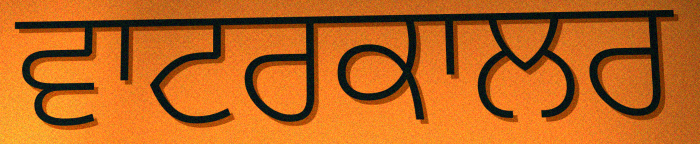
ਵਾਟਰਕਾਲਰ